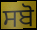
ਸਬੋ